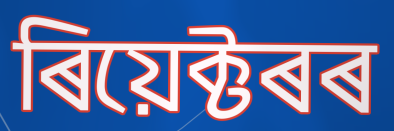
ৰিয়েক্টৰৰ